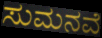
ಸುಮನವೆ